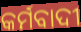
କର୍ମବାଦୀ